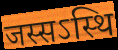
जस्सऽस्थि